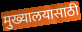
मुख्यालयासाठी